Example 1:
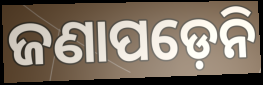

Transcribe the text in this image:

ଜଣାପଡ଼େନି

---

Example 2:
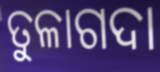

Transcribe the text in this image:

ତୁଳାଗଦା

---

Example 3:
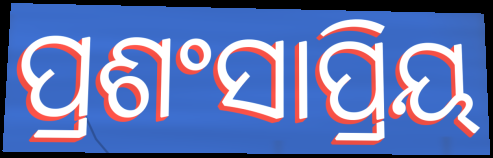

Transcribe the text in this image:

ପ୍ରଶଂସାପ୍ରିୟ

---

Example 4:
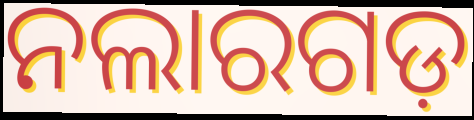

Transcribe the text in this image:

ନଲାରଗଡ଼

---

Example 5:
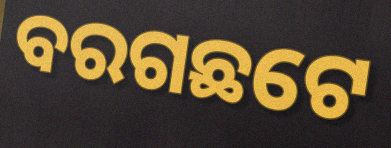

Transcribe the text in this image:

ବରଗଛଟେ